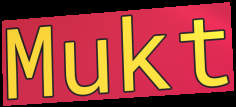
Mukt